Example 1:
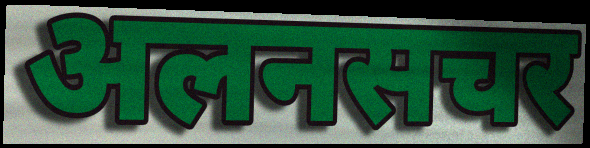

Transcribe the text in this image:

अलनसचर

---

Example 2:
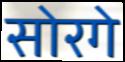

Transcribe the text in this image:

सोरगे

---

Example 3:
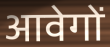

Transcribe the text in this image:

आवेगों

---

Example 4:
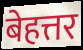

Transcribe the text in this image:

बेहत्तर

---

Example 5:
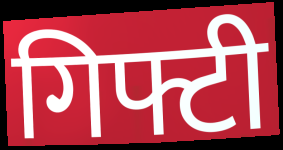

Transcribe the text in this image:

गिफ्टी